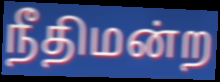
நீதிமன்ற